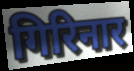
गिरिनार